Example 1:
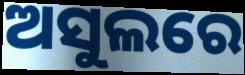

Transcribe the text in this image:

ଅସୁଲରେ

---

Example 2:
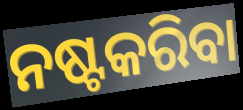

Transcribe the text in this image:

ନଷ୍ଟକରିବା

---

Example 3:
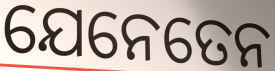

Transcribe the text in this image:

ଯେନେତେନ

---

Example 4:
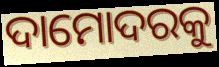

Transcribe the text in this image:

ଦାମୋଦରକୁ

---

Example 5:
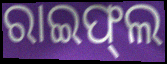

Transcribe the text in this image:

ରାଇଫ୍‌ଲ